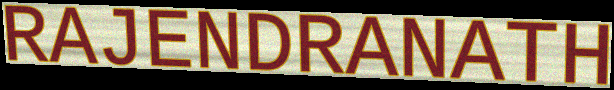
RAJENDRANATH